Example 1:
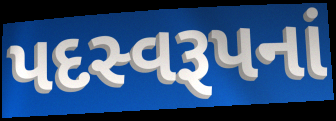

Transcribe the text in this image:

પદસ્વરૂપનાં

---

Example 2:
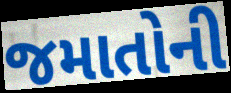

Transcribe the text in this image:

જમાતોની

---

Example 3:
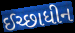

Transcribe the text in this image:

ઈચ્છાધીન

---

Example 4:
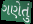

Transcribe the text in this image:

ગણેતું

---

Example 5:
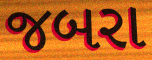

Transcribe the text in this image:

જબરા